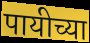
पायीच्या